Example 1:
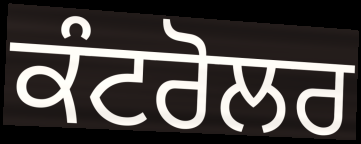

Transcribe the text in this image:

ਕੰਟਰੋਲਰ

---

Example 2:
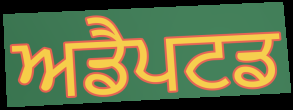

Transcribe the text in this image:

ਅਡੈਪਟਡ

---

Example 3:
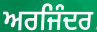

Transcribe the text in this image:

ਅਰਜਿੰਦਰ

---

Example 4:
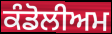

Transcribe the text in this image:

ਕੰਡੋਲੀਅਮ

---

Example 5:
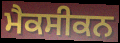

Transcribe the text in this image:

ਮੈਕਸੀਕਨ